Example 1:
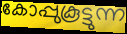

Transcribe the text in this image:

കോപ്പുകൂട്ടുന്ന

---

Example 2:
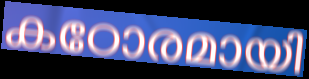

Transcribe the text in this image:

കഠോരമായി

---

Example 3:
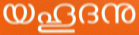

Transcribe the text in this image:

യഹൂദനു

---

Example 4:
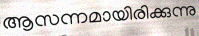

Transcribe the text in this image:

ആസന്നമായിരിക്കുന്നു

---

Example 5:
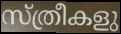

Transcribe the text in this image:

സ്ത്രീകളു